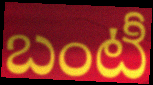
బంటీ